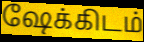
ஷேக்கிடம்